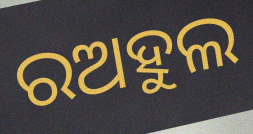
ରଅହୁଲ